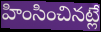
హింసించినట్లే